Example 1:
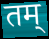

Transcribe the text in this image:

तम्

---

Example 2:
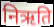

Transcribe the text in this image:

निऋति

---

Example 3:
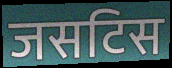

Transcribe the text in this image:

जसटिस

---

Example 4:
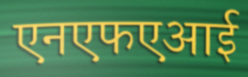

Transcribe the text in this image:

एनएफएआई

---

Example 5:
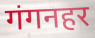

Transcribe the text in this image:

गंगनहर